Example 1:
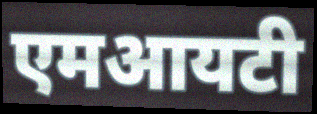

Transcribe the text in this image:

एमआयटी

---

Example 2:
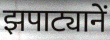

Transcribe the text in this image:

झपाट्यानें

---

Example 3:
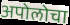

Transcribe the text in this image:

अपोलोचा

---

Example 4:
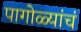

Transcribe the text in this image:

पागोळ्यांचं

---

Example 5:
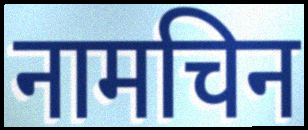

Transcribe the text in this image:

नामचिन